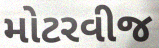
મોટરવીજ